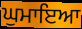
ਘੁਮਾਇਆ